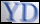
YD